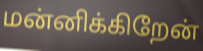
மன்னிக்கிறேன்